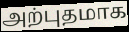
அற்புதமாக